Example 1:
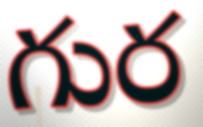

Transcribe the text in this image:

గుర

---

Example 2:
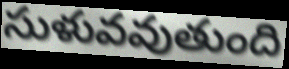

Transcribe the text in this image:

సుళువవుతుంది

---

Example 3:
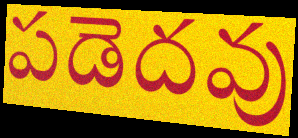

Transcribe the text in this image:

పడెదవు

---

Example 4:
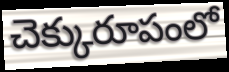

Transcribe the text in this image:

చెక్కురూపంలో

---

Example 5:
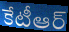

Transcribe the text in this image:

కేటీఆర్